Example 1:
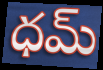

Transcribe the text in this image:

ధమ్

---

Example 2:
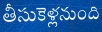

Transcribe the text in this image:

తీసుకెళ్లనుంది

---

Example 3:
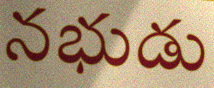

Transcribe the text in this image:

నభుడు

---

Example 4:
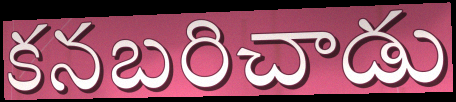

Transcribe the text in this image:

కనబరిచాడు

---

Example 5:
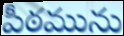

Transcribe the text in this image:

పీఠమును